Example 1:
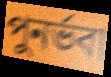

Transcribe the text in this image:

পুনর্ভবা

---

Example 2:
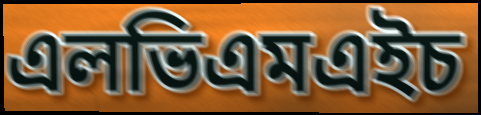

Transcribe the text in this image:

এলভিএমএইচ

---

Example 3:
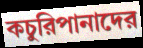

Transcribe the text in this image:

কচুরিপানাদের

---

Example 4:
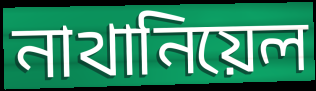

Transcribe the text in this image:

নাথানিয়েল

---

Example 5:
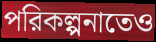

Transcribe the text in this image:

পরিকল্পনাতেও